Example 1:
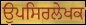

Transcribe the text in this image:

ਉਪਸਿਰਲੇਖਕ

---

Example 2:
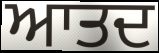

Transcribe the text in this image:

ਆਤਦ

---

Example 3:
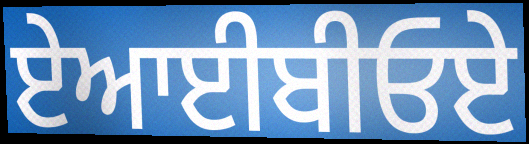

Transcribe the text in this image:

ਏਆਈਬੀਓਏ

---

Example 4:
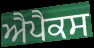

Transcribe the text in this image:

ਐਪੈਕਸ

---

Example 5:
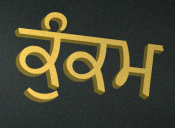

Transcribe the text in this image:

ਕੁੰਕਮ